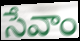
సేవాం